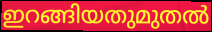
ഇറങ്ങിയതുമുതൽ